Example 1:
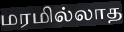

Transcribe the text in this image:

மரமில்லாத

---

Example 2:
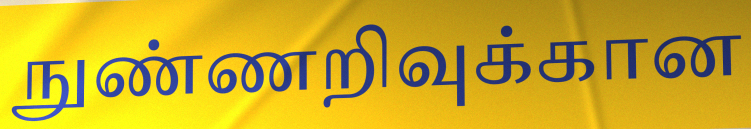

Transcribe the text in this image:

நுண்ணறிவுக்கான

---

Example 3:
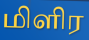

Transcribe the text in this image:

மிளிர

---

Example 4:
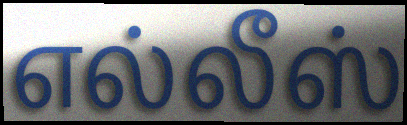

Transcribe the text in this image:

எல்லீஸ்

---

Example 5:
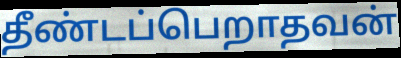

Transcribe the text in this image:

தீண்டப்பெறாதவன்